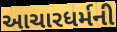
આચારધર્મની